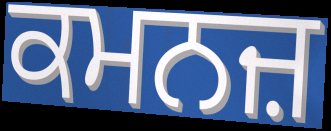
ਕਮਨਜ਼